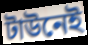
টাউনেই